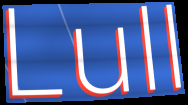
Lull